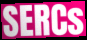
SERCs